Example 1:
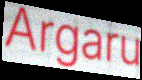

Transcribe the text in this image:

Argaru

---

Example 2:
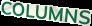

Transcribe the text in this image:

COLUMNS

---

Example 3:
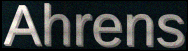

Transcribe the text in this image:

Ahrens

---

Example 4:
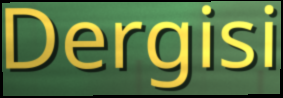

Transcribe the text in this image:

Dergisi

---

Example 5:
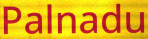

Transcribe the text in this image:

Palnadu